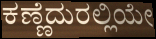
ಕಣ್ಣೆದುರಲ್ಲಿಯೇ